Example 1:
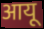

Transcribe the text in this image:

आयू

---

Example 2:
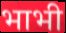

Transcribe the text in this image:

भाभी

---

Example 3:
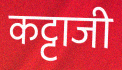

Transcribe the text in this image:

कट्टाजी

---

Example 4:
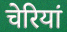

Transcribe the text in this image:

चेरियां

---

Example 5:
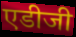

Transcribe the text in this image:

एडीजी